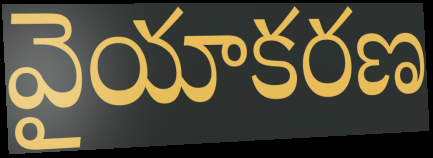
వైయాకరణ